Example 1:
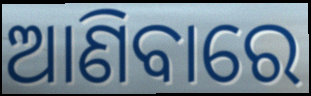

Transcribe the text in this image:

ଆଣିବାରେ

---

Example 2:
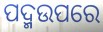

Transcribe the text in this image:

ପଦ୍ମଉପରେ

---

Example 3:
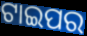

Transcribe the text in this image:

ଟାଇପର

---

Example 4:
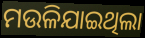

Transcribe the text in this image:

ମଉଳିଯାଇଥିଲା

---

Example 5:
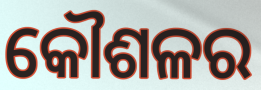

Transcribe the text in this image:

କୌଶଳର